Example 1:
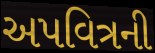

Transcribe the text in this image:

અપવિત્રની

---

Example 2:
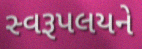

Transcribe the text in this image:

સ્વરૂપલયને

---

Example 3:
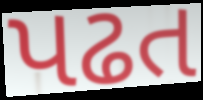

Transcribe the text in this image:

પઢત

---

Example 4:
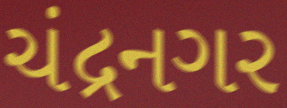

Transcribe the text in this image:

ચંદ્રનગર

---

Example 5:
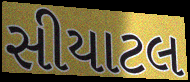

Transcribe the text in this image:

સીયાટલ